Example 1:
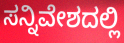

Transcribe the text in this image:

ಸನ್ನಿವೇಶದಲ್ಲಿ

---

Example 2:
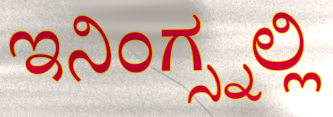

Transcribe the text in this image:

ಇನಿಂಗ್ಸ್ನಲ್ಲಿ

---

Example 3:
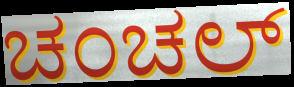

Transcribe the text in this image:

ಚಂಚಲ್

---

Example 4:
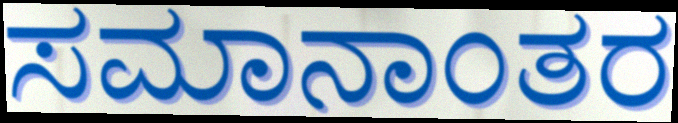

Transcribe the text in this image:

ಸಮಾನಾಂತರ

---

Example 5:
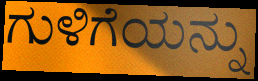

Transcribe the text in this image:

ಗುಳಿಗೆಯನ್ನು